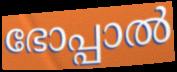
ഭോപ്പാൽ